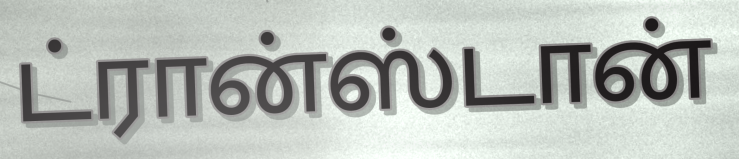
ட்ரான்ஸ்டான்